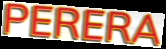
PERERA